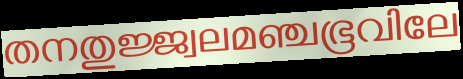
തനതുജ്ജ്വലമഞ്ചഭൂവിലേ